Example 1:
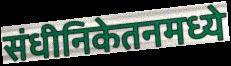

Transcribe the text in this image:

संधीनिकेतनमध्ये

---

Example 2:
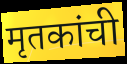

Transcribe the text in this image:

मृतकांची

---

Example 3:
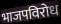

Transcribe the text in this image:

भाजपविरोध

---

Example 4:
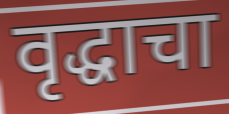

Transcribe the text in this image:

वृद्धाचा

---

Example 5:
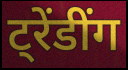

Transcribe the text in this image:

ट्रेंडींग